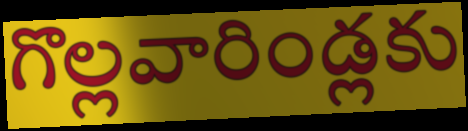
గొల్లవారిండ్లకు